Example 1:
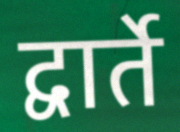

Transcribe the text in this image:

द्वार्ते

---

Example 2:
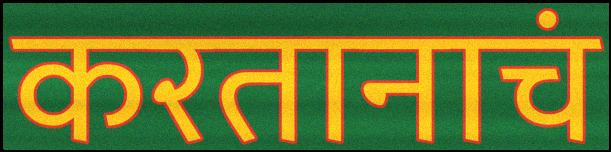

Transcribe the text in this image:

करतानाचं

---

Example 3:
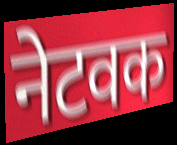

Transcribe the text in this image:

नेटवक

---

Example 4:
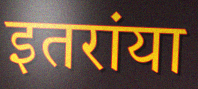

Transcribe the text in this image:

इतरांया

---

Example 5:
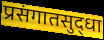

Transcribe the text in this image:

प्रसंगातसुद्धा